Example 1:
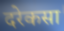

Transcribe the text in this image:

दरेकसा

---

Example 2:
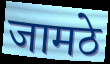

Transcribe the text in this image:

जामठे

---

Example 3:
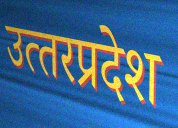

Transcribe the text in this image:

उत्‍तरप्रदेश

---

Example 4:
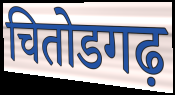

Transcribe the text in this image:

चितोडगढ़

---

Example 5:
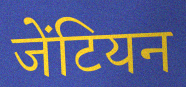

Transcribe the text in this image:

जेंटियन